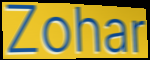
Zohar